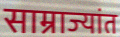
साम्राज्यांत